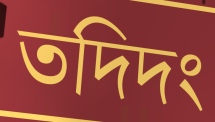
তদিদং